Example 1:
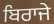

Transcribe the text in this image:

ਬਿਰਾਜੇ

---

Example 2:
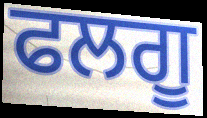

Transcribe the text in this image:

ਫਲਗੂ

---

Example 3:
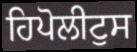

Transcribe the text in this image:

ਹਿਪੋਲੀਟੁਸ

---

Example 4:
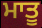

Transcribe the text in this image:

ਮਾਤੂ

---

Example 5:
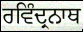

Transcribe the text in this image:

ਰਵਿੰਦ੍ਰਨਾਥ